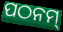
ପଠନମ୍